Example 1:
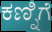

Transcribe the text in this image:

ಕಣ್ನಿಗೆ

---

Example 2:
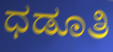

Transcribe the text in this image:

ಧಡೂತಿ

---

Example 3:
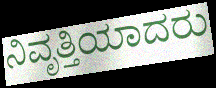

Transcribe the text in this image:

ನಿವೃತ್ತಿಯಾದರು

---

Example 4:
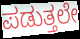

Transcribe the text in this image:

ಪಡುತ್ತಲೇ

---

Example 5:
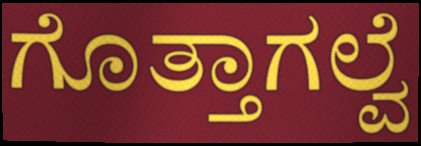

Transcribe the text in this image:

ಗೊತ್ತಾಗಲ್ವೆ